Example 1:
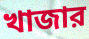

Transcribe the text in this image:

খাজার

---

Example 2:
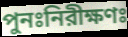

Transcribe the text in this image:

পুনঃনিরীক্ষণঃ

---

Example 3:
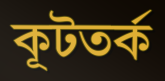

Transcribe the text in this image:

কূটতর্ক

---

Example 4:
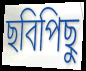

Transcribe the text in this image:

ছবিপিছু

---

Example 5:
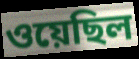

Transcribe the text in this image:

ওয়েছিল